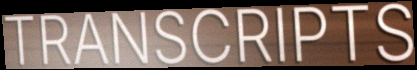
TRANSCRIPTS